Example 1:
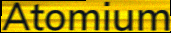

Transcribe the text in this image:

Atomium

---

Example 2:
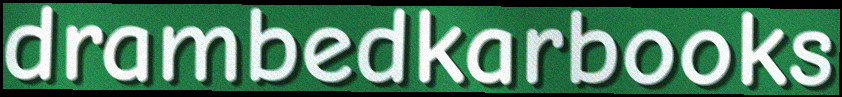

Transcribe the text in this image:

drambedkarbooks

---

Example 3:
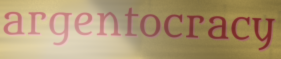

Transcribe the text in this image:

argentocracy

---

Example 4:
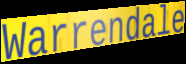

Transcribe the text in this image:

Warrendale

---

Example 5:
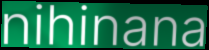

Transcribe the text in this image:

nihinana